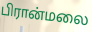
பிரான்மலை